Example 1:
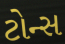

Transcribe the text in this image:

ટોન્સ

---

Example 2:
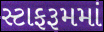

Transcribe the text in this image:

સ્ટાફરૂમમાં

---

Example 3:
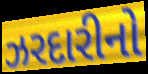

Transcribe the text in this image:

ઝરદારીનો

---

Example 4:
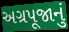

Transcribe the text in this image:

અગ્રપૂજાનું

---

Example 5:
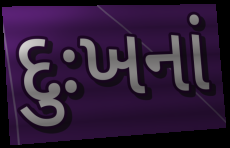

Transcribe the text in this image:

દુઃખનાં